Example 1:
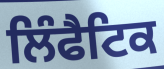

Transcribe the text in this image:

ਲਿੰਫੈਟਿਕ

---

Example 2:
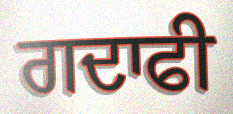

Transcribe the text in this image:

ਗਦਾਫੀ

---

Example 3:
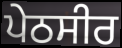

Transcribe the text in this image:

ਪੇਠਸੀਰ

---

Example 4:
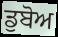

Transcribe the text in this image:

ਡੁਬੋਅ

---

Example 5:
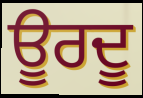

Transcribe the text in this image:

ਊਰਦੂ